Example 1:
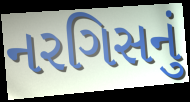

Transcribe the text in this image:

નરગિસનું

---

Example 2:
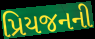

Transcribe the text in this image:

પ્રિયજનની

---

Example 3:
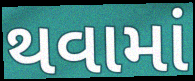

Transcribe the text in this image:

થવામાં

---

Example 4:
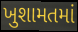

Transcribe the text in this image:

ખુશામતમાં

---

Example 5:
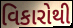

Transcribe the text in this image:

વિકારોથી